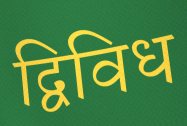
द्विविध